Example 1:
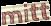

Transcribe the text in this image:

mitt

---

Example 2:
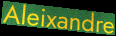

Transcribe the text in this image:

Aleixandre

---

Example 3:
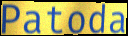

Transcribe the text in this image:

Patoda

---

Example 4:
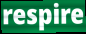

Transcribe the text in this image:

respire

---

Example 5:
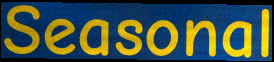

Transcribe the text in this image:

Seasonal